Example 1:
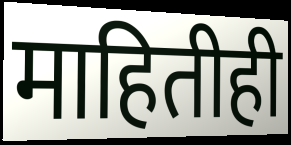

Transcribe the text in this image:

माहितीही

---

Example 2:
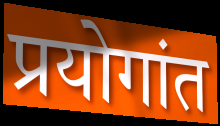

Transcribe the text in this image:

प्रयोगांत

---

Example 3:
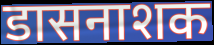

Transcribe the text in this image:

डासनाशक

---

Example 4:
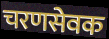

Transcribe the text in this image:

चरणसेवक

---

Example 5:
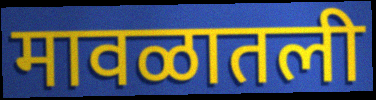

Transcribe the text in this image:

मावळातली